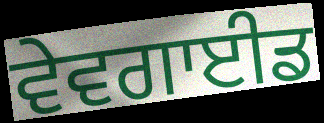
ਵੇਵਗਾਈਡ